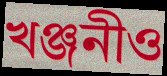
খঞ্জনীও